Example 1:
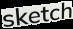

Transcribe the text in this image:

sketch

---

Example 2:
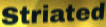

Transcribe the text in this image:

Striated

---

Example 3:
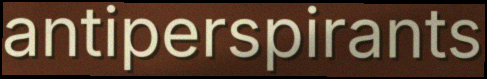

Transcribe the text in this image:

antiperspirants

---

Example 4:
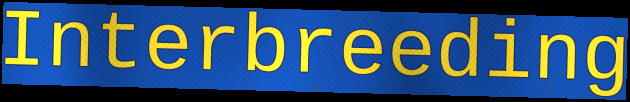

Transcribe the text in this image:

Interbreeding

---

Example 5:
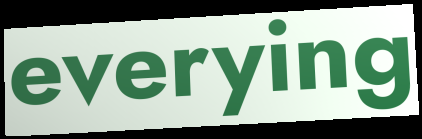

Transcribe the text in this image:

everying